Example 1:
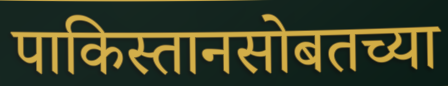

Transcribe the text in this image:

पाकिस्तानसोबतच्या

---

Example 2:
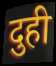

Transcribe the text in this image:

दुही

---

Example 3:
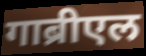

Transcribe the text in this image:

गाब्रीएल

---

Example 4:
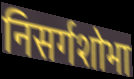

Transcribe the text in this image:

निसर्गशोभा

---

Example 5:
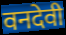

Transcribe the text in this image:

वनदेवी